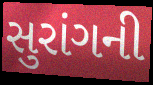
સુરાંગની